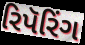
રિપૅરિંગ